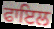
ਫਾਇਲ